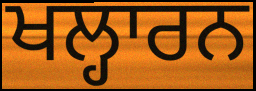
ਖਲ੍ਹਾਰਨ